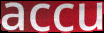
accu